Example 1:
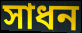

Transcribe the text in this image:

সাধন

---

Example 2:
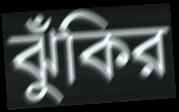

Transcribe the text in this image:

ঝুঁকির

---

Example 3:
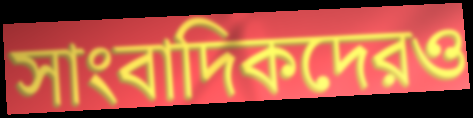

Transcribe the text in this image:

সাংবাদিকদেরও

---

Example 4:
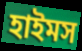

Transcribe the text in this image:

হাইমস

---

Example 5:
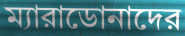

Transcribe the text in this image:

ম্যারাডোনাদের